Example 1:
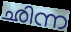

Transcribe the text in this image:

ഛിന്ന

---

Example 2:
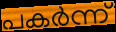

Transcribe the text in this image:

പകർന്ന്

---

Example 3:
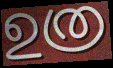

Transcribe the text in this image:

ഉത്ര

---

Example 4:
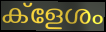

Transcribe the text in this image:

ക്ളേശം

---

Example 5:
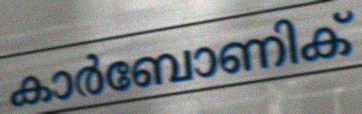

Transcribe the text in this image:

കാർബോണിക്